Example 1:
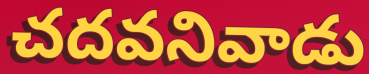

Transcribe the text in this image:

చదవనివాడు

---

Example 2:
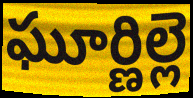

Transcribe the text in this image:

ఘూర్ణిల్లె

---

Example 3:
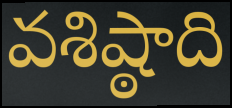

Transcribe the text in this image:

వశిష్ఠాది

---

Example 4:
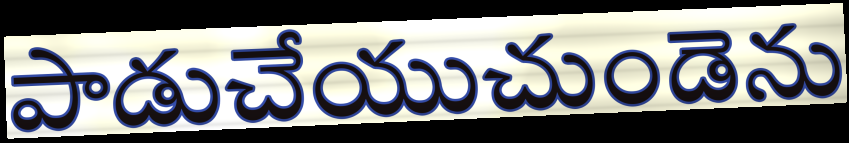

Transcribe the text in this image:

పాడుచేయుచుండెను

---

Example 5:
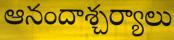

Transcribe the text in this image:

ఆనందాశ్చర్యాలు